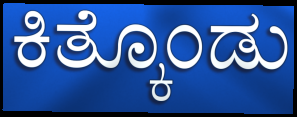
ಕಿತ್ಕೊಂಡು